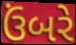
ઉંબરે